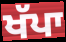
ਖੱਪਾ